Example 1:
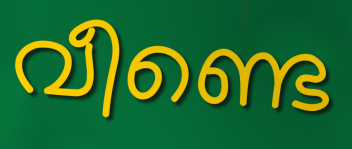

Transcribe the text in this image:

വീണ്ടെ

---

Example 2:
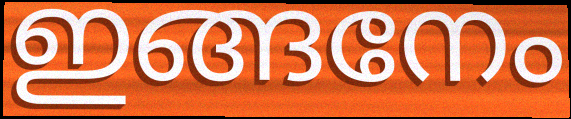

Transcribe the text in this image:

ഇങ്ങനേം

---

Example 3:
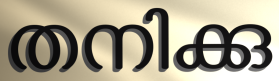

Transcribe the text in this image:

തനിക്കു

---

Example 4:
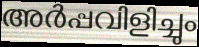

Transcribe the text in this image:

അർപ്പവിളിച്ചും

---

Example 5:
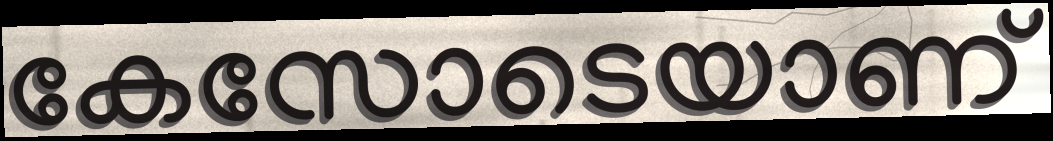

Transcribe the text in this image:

കേസോടെയാണ്